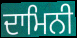
ਦਾਮਿਨੀ